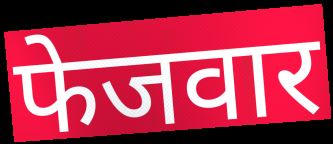
फेजवार